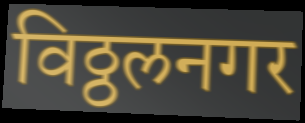
विठ्ठलनगर